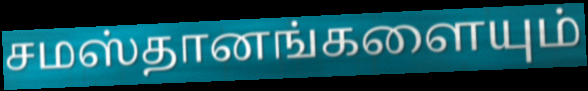
சமஸ்தானங்களையும்